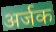
अर्जक